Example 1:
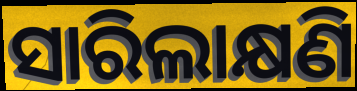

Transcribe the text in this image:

ସାରିଲାକ୍ଷଣି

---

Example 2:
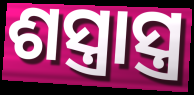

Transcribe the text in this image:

ଶସ୍ତ୍ରାସ୍ତ୍ର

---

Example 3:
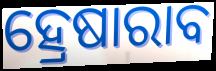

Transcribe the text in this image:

ହ୍ରେଷାରାବ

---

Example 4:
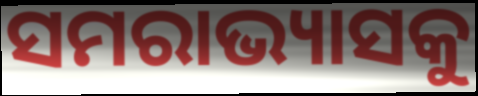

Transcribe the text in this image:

ସମରାଭ୍ୟାସକୁ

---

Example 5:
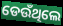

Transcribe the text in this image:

ଡେଉଁଥିଲେ